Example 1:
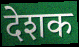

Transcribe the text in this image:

देशक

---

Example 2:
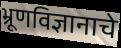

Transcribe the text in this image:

भ्रूणविज्ञानाचे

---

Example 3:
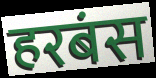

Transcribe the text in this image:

हरबंस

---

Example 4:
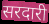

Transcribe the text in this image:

सरदारी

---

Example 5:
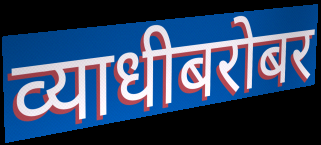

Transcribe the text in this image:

व्याधीबरोबर